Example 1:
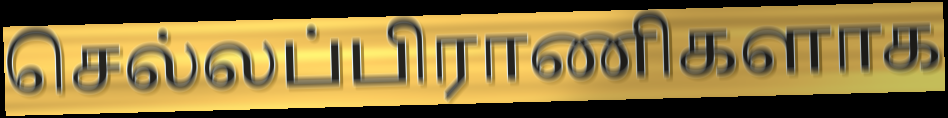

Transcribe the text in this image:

செல்லப்பிராணிகளாக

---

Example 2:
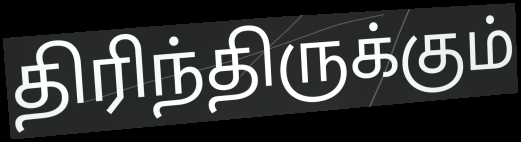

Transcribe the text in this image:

திரிந்திருக்கும்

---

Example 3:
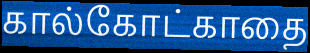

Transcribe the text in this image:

கால்கோட்காதை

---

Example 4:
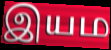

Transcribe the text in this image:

இயம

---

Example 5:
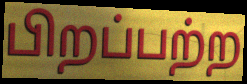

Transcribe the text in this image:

பிறப்பற்ற